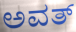
ಅವತ್